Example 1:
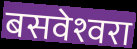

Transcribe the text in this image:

बसवेश्वरा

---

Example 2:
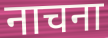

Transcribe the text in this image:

नाचना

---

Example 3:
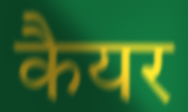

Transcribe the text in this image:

कैयर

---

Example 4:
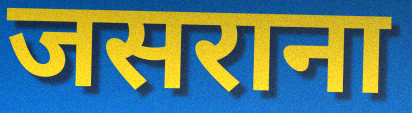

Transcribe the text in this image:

जसराना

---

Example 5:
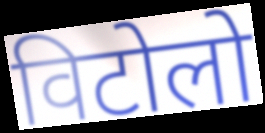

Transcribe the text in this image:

विटोलो